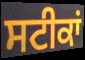
ਸਟੀਕਾਂ